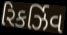
રિકર્ઝિવ